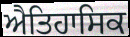
ਐਤਿਹਾਸਿਕ